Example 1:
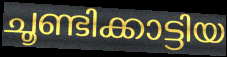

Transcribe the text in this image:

ചൂണ്ടിക്കാട്ടിയ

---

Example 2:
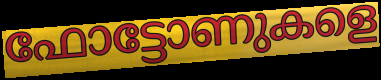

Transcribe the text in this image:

ഫോട്ടോണുകളെ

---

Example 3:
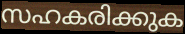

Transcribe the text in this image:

സഹകരിക്കുക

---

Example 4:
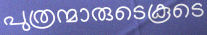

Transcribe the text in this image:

പുത്രന്മാരുടെകൂടെ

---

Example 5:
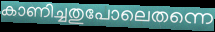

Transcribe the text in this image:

കാണിച്ചതുപോലെതന്നെ